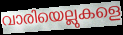
വാരിയെല്ലുകളെ